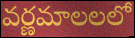
వర్ణమాలలలో